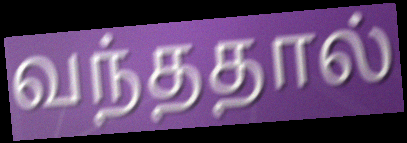
வந்ததால்